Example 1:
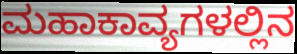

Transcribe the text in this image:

ಮಹಾಕಾವ್ಯಗಳಲ್ಲಿನ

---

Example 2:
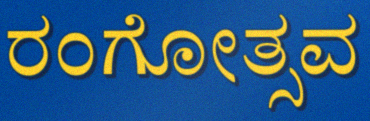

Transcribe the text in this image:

ರಂಗೋತ್ಸವ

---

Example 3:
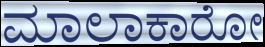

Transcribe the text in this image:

ಮಾಲಾಕಾರೋ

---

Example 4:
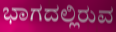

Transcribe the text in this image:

ಭಾಗದಲ್ಲಿರುವ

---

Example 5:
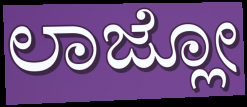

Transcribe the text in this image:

ಲಾಜ್ಲೋ